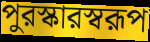
পুরস্কারস্বরূপ